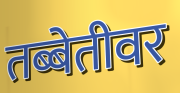
तब्बेतीवर